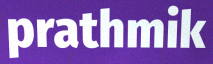
prathmik